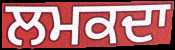
ਲਮਕਦਾ